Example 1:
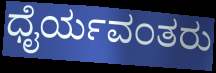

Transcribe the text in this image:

ಧೈರ್ಯವಂತರು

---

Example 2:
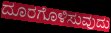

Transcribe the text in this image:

ದೂರಗೊಳಿಸುವುದು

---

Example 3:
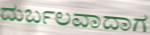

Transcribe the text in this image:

ದುರ್ಬಲವಾದಾಗ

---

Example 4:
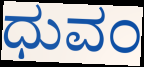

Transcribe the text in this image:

ಧುವಂ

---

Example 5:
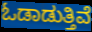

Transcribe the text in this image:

ಓಡಾಡುತ್ತಿವೆ